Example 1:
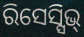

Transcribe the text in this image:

ରିସେସ୍ସିଭ୍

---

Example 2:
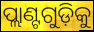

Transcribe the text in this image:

ପ୍ଲାଣ୍ଟଗୁଡ଼ିକୁ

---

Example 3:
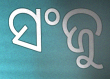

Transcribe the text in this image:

ସଂଜୁ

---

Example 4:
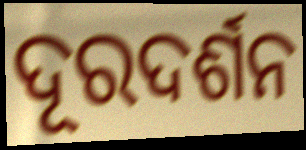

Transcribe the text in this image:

ଦୂରଦର୍ଶନ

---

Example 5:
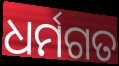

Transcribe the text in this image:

ଧର୍ମଗତ